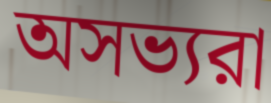
অসভ্যরা